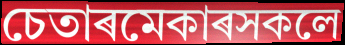
চেতাৰমেকাৰসকলে